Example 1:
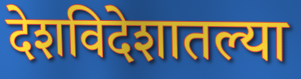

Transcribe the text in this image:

देशविदेशातल्या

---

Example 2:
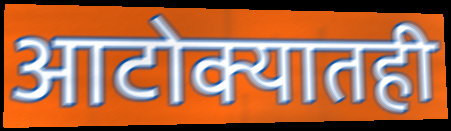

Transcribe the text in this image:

आटोक्यातही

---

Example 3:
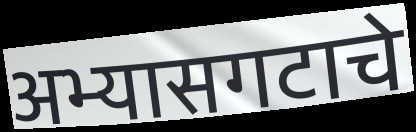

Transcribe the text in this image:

अभ्यासगटाचे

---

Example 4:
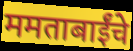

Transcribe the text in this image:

ममताबाईंचे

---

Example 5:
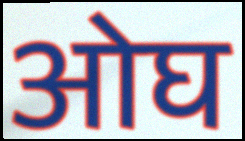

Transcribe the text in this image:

ओघ